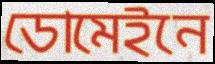
ডোমেইনে